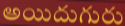
అయిదుగురు